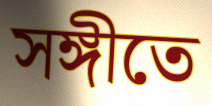
সঙ্গীতে